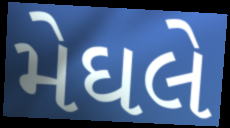
મેઘલે